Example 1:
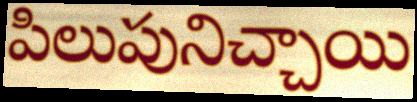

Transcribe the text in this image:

పిలుపునిచ్చాయి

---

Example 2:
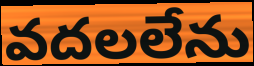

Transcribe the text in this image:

వదలలేను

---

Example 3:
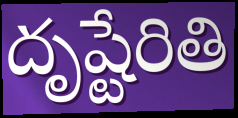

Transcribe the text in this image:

దృష్టేరితి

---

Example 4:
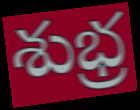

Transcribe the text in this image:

శుభ్ర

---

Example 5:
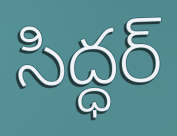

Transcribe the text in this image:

సిద్ధర్